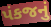
પંકજનું